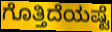
ಗೊತ್ತಿದೆಯಷ್ಟೆ